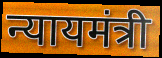
न्यायमंत्री